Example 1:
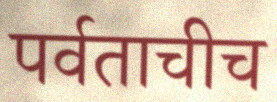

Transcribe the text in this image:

पर्वताचीच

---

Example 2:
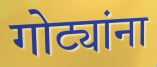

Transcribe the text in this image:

गोट्यांना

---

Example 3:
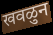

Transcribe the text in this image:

खवळुन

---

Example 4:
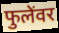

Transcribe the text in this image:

फुलेंवर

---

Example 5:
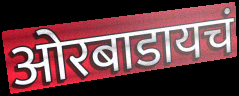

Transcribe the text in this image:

ओरबाडायचं